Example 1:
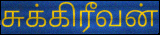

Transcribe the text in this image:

சுக்கிரீவன்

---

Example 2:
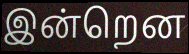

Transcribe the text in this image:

இன்றென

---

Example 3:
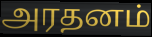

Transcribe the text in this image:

அரதனம்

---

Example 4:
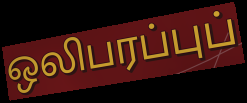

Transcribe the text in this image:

ஒலிபரப்புப்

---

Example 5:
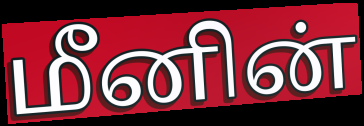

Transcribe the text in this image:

மீனின்